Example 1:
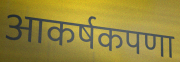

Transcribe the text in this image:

आकर्षकपणा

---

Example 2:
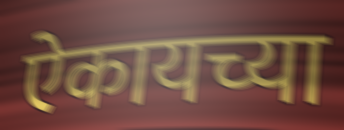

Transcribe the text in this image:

ऐकायच्या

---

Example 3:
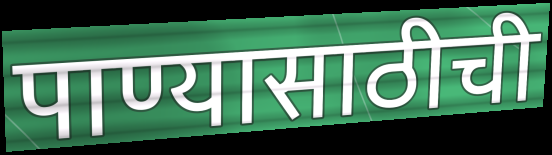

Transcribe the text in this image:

पाण्यासाठीची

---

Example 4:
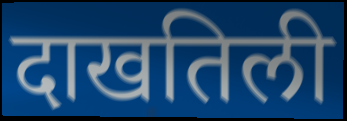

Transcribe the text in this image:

दाखतिली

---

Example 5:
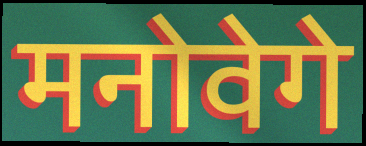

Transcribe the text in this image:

मनोवेगे